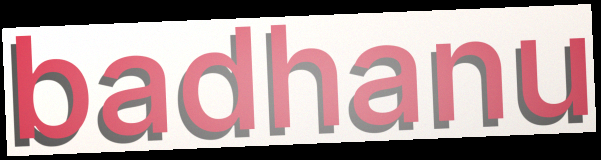
badhanu